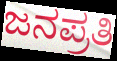
ಜನಪ್ರತಿ